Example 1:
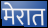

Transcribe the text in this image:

मेरात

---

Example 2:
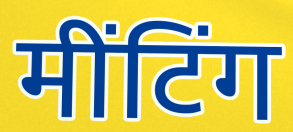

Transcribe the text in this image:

मींटिंग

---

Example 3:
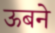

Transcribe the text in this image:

ऊबने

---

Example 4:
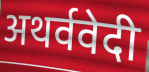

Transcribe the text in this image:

अथर्ववेदी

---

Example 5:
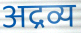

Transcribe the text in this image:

अद्रव्य